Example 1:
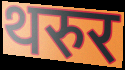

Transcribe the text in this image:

थरुर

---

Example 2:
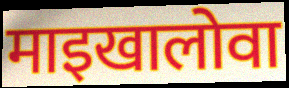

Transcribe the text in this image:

माइखालोवा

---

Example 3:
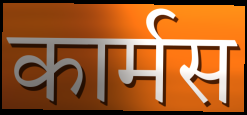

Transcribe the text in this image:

कार्मस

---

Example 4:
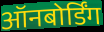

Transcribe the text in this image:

ऑनबोर्डिंग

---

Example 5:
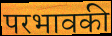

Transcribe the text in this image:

परभावकी